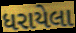
ધરાયેલા